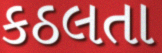
કઠલતા